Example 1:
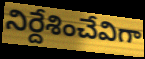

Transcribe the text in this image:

నిర్దేశించేవిగా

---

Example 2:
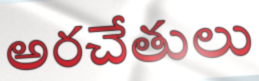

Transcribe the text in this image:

అరచేతులు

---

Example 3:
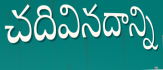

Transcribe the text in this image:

చదివినదాన్ని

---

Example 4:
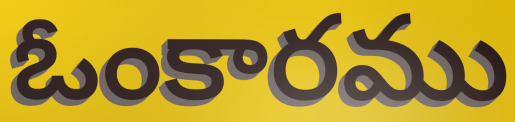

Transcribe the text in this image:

ఓంకారము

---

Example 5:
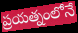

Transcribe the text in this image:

ప్రయత్నంలోనే